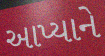
આપ્યાને